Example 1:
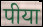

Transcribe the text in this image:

पीया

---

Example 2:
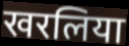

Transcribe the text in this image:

खरलिया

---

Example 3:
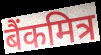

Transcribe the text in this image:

बैंकमित्र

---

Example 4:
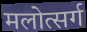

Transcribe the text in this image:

मलोत्सर्ग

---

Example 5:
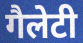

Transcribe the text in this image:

गैलेटी